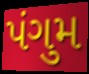
પંગુમ